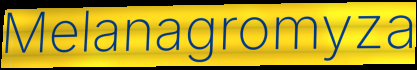
Melanagromyza